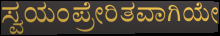
ಸ್ವಯಂಪ್ರೇರಿತವಾಗಿಯೇ